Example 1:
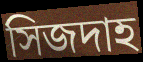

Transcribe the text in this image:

সিজদাহ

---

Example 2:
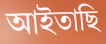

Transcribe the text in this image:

আইতাছি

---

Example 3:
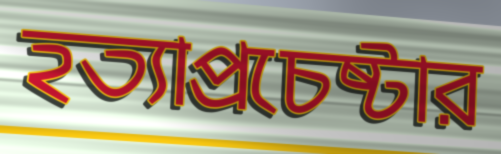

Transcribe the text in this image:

হত্যাপ্রচেষ্টার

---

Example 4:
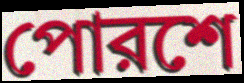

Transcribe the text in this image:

পোরশে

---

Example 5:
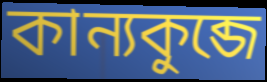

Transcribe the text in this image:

কান্যকুব্জে